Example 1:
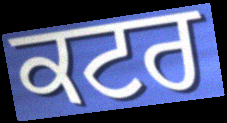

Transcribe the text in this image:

ਕਟਰ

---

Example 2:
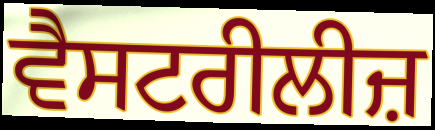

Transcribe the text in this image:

ਵੈਸਟਰੀਲੀਜ਼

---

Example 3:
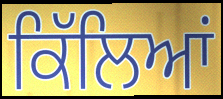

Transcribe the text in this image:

ਕਿੱਲਿਆਂ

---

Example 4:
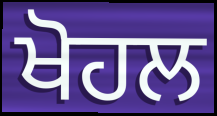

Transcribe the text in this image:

ਖੋਹਲ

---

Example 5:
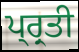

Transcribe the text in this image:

ਪ੍ਰ੍ਰਤੀ